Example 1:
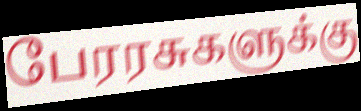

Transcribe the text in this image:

பேரரசுகளுக்கு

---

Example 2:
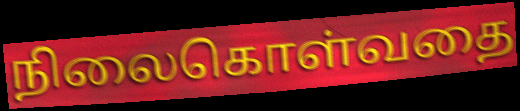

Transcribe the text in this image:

நிலைகொள்வதை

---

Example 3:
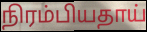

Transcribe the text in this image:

நிரம்பியதாய்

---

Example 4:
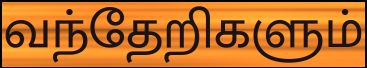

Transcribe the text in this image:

வந்தேறிகளும்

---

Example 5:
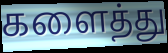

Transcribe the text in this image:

களைத்து